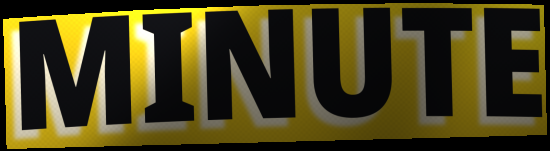
MINUTE